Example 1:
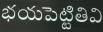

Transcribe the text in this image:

భయపెట్టితివి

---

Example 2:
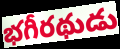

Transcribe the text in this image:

భగీరథుడు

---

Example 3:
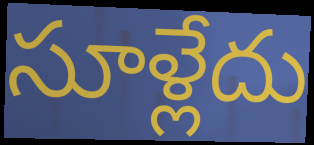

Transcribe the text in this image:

సూళ్లేదు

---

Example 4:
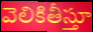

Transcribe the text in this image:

వెలికితీస్తూ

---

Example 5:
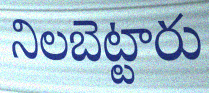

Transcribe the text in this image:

నిలబెట్టారు